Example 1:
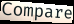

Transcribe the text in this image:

Compare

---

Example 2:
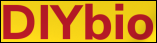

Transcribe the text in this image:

DIYbio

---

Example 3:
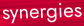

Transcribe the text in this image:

synergies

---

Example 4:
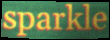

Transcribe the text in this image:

sparkle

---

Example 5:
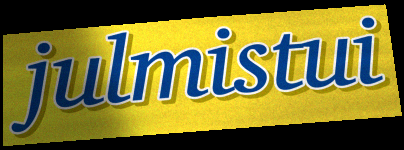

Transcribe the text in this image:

julmistui